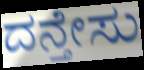
ದನ್ತೇಸು